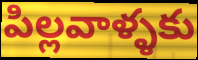
పిల్లవాళ్ళకు